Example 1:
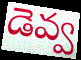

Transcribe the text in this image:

డెవ్వ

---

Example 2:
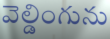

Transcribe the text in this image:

వెల్డింగును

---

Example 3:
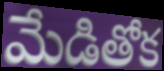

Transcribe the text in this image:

మేడితోక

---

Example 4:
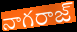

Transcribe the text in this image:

నాగరాజ్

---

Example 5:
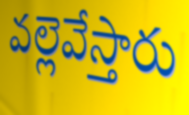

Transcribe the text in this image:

వల్లెవేస్తారు